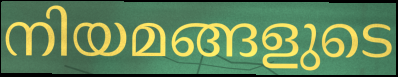
നിയമങ്ങളുടെ